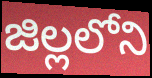
జిల్లలోని